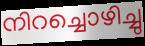
നിറച്ചൊഴിച്ചു